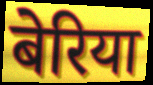
बेरिया